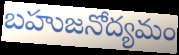
బహుజనోద్యమం